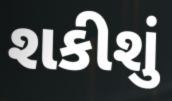
શકીશું